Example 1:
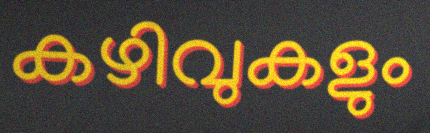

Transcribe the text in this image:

കഴിവുകളും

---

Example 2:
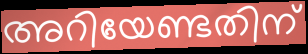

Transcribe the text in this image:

അറിയേണ്ടതിന്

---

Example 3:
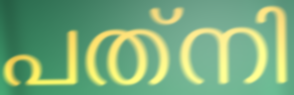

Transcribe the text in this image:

പത്‌നി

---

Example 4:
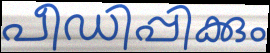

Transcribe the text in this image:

പീഡിപ്പിക്കും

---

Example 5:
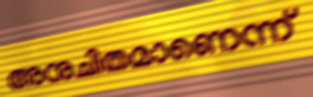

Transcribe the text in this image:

അനുചിതമാണെന്ന്